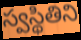
స్వస్థితిని